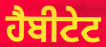
ਹੈਬੀਟੇਟ